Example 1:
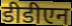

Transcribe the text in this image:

डीडीएन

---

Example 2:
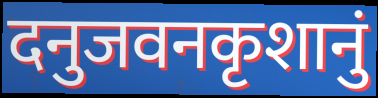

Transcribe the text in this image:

दनुजवनकृशानुं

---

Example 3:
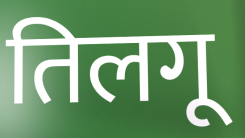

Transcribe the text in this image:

तिलगू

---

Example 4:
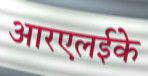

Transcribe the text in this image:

आरएलईके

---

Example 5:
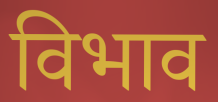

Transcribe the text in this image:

विभाव